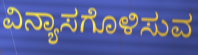
ವಿನ್ಯಾಸಗೊಳಿಸುವ